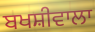
ਬਖਸ਼ੀਵਾਲਾ